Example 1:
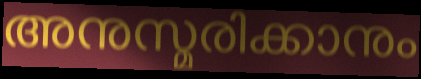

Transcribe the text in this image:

അനുസ്മരിക്കാനും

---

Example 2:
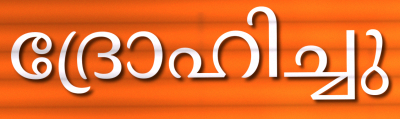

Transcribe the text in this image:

ദ്രോഹിച്ചു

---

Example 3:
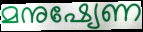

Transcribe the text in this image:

മനുഷ്യേണ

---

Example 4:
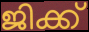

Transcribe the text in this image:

ജിക്ക്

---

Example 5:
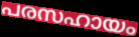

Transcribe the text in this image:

പരസഹായം